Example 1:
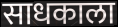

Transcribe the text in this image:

साधकाला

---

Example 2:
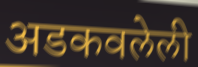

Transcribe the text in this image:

अडकवलेली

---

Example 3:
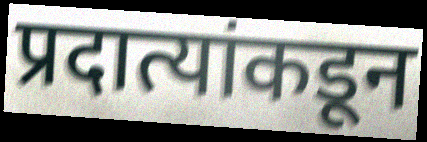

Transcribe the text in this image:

प्रदात्यांकडून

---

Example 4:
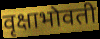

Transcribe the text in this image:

वृक्षाभोवती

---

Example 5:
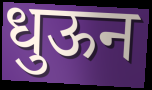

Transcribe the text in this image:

धुऊन